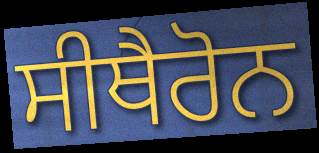
ਸੀਥੈਰੋਨ